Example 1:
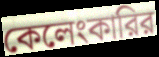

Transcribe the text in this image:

কেলেংকারির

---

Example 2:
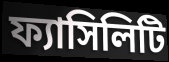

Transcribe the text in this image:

ফ্যাসিলিটি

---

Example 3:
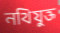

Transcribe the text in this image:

নথিযুক্ত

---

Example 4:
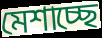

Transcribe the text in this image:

মেশাচ্ছে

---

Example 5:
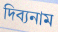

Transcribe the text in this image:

দিব্যনাম